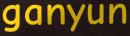
ganyun